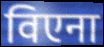
विएना